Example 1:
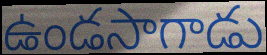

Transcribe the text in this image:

ఉండసాగాడు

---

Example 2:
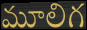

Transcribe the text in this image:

మూలిగ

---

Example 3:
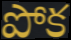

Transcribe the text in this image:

పోక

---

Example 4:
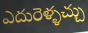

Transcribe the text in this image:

ఎదురెళ్ళచ్చు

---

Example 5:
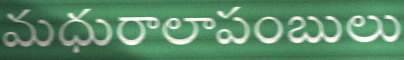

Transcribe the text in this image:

మధురాలాపంబులు